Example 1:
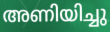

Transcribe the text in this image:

അണിയിച്ചു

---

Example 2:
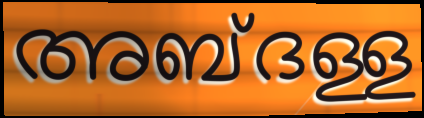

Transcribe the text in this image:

അബ്ദള്ള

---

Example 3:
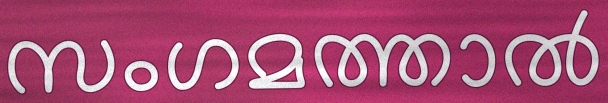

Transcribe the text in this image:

സംഗമത്താൽ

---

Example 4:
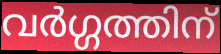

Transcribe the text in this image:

വർഗ്ഗത്തിന്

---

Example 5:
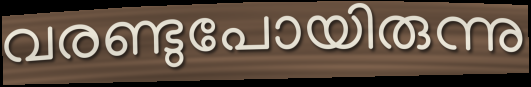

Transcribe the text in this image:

വരണ്ടുപോയിരുന്നു